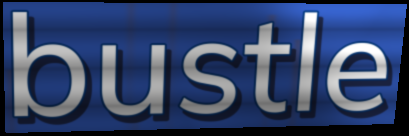
bustle